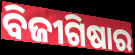
ବିଜୀଗିଷାର